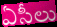
ఏసీలు